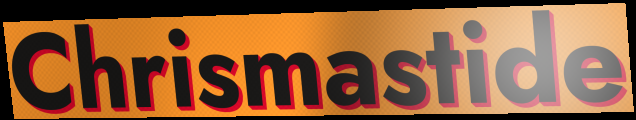
Chrismastide